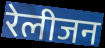
रेलीजन